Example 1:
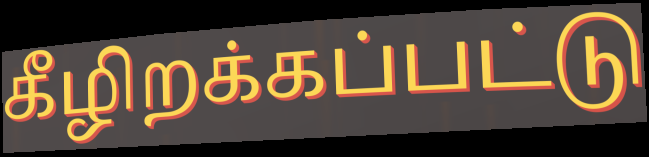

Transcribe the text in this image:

கீழிறக்கப்பட்டு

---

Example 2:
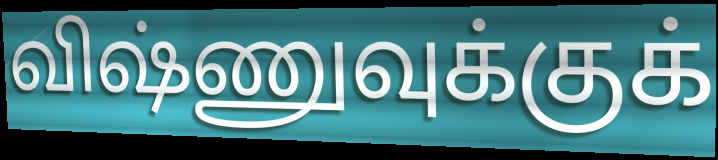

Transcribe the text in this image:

விஷ்ணுவுக்குக்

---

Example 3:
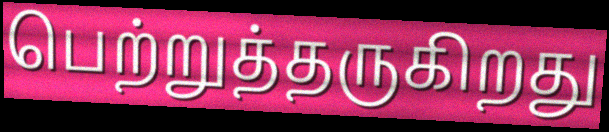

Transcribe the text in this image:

பெற்றுத்தருகிறது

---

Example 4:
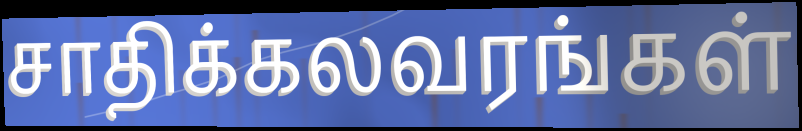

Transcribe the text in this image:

சாதிக்கலவரங்கள்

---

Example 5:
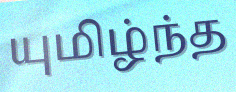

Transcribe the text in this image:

யுமிழ்ந்த